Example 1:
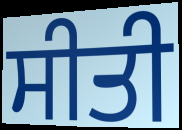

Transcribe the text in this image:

ਸੀਤੀ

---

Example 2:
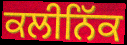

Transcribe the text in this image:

ਕਲੀਨਿੱਕ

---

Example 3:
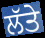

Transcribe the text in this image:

ਲੱਤੇ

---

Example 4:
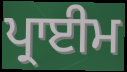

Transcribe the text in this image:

ਪ੍ਰਾਈਮ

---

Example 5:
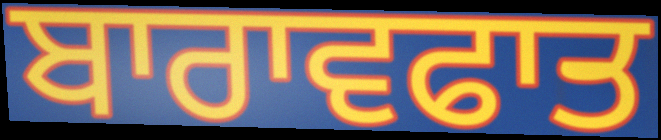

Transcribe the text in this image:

ਬਾਰਾਵਫਾਤ